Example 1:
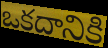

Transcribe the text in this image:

ఒకదానికి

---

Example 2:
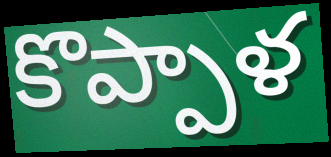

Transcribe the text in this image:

కొప్పాళ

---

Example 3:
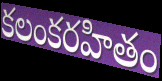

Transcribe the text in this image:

కలంకరహితం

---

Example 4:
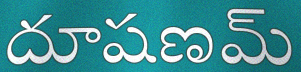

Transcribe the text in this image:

దూషణమ్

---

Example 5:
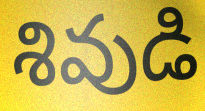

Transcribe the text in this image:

శివుడి